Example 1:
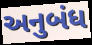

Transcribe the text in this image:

અનુબંધ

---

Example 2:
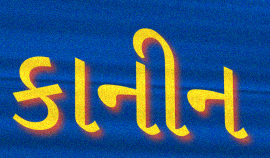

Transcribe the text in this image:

કાનીન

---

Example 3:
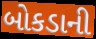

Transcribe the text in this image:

બોકડાની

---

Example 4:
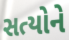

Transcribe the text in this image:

સત્યોને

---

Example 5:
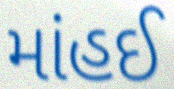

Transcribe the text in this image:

માંહઈ